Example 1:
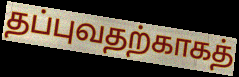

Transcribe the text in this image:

தப்புவதற்காகத்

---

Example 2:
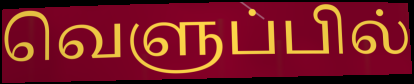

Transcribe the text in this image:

வெளுப்பில்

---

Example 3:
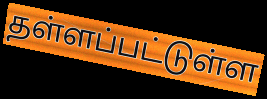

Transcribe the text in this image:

தள்ளப்பட்டுள்ள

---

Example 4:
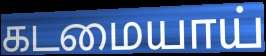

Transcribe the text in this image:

கடமையாய்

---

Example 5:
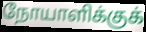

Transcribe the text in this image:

நோயாளிக்குக்